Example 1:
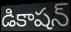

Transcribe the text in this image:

డికాషన్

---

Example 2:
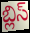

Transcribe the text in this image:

బ్లిస్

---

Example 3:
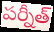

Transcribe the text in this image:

పర్నీత్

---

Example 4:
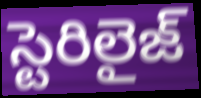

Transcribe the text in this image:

స్టెరిలైజ్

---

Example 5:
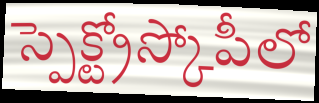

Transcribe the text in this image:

స్పెక్ట్రోస్కోపీలో